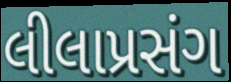
લીલાપ્રસંગ